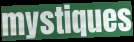
mystiques